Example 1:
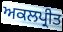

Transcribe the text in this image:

ਅਕਲਪ੍ਰੀਤ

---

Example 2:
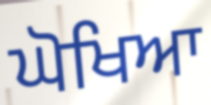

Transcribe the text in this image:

ਘੋਖਿਆ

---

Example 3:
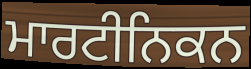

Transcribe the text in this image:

ਮਾਰਟੀਨਿਕਨ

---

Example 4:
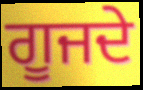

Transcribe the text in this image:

ਗੂਜਦੇ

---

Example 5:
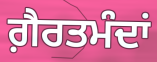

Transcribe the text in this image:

ਗ਼ੈਰਤਮੰਦਾਂ